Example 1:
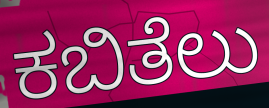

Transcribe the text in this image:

ಕಬಿತೆಲು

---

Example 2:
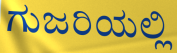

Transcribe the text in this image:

ಗುಜರಿಯಲ್ಲಿ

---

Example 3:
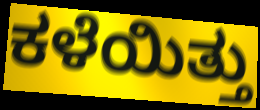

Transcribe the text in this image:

ಕಳೆಯಿತ್ತು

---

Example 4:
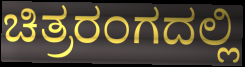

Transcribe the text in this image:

ಚಿತ್ರರಂಗದಲ್ಲಿ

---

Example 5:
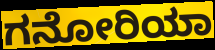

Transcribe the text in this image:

ಗನೋರಿಯಾ